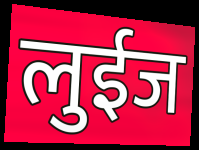
लुईज